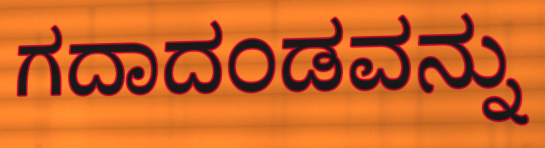
ಗದಾದಂಡವನ್ನು